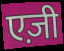
एज़ी